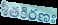
శీతకిరణః